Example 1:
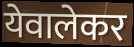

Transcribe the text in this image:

येवालेकर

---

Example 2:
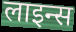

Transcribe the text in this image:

लाइन्स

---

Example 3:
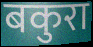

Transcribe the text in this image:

बकुरा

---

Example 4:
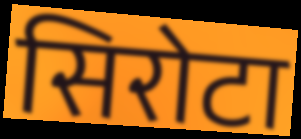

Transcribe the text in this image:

सिरोटा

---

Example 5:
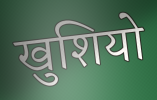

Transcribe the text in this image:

खुशियो